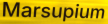
Marsupium